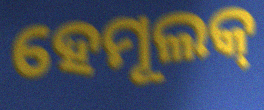
ହେମୂଲକ୍